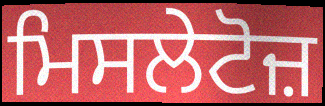
ਮਿਸਲੇਟੋਜ਼